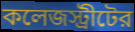
কলেজস্ট্রীটের